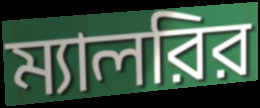
ম্যালরির